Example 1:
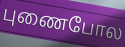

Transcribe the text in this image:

புணைபோல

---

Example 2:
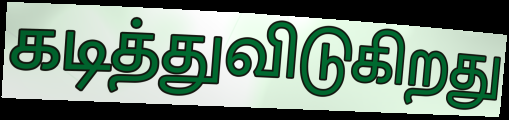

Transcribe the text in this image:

கடித்துவிடுகிறது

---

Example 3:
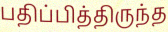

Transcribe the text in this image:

பதிப்பித்திருந்த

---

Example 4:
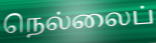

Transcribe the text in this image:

நெல்லைப்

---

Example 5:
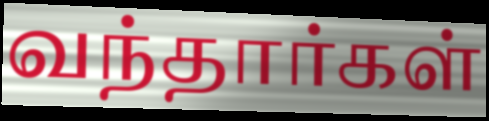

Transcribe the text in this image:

வந்தார்கள்